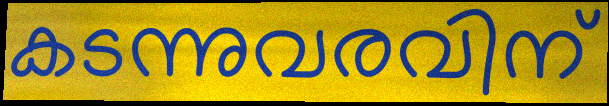
കടന്നുവരവിന്